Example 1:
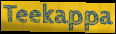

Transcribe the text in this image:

Teekappa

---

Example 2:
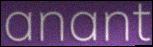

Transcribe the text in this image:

anant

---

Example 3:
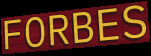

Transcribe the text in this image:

FORBES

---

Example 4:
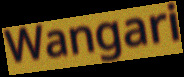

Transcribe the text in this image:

Wangari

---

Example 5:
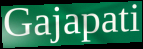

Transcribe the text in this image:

Gajapati